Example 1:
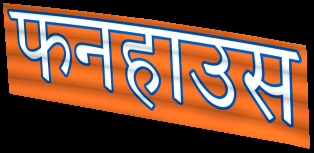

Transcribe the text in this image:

फनहाउस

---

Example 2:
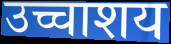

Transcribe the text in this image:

उच्चाशय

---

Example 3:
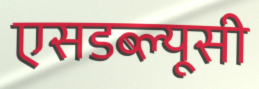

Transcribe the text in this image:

एसडब्ल्यूसी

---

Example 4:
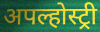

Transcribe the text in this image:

अपल्होस्ट्री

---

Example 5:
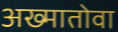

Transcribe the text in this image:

अख्मातोवा